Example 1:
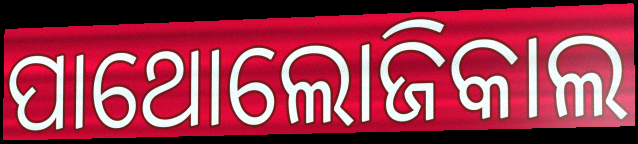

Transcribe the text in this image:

ପାଥୋଲୋଜିକାଲ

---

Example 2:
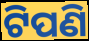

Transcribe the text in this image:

ଟିପଣି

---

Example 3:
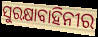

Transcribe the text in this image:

ସୁରକ୍ଷାବାହିନୀର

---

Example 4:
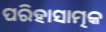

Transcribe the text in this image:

ପରିହାସାତ୍ମକ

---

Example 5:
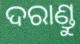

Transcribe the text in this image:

ଦରାଣ୍ଡୁ